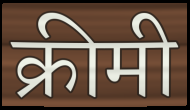
क्रीमी